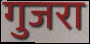
गुजरा